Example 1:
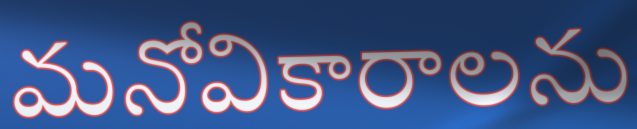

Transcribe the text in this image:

మనోవికారాలను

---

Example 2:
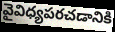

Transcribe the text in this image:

వైవిధ్యపరచడానికి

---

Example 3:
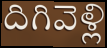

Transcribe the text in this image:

దిగివెళ్లి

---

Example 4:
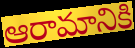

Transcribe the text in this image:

ఆరామానికి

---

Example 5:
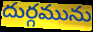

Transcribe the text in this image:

దుర్గమును